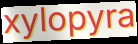
xylopyra